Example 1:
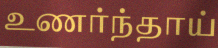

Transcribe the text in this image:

உணர்ந்தாய்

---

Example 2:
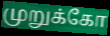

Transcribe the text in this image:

முறுக்கோ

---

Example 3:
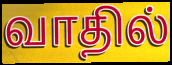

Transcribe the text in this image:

வாதில்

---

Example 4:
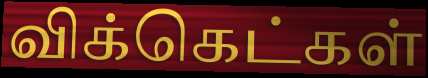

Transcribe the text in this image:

விக்கெட்கள்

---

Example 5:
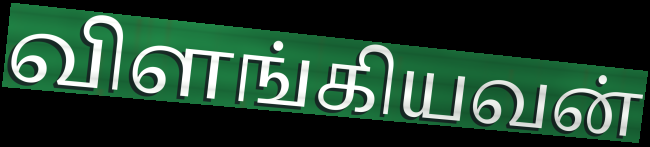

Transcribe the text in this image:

விளங்கியவன்